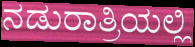
ನಡುರಾತ್ರಿಯಲ್ಲಿ